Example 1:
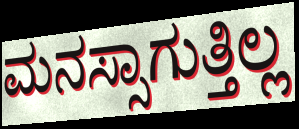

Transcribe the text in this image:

ಮನಸ್ಸಾಗುತ್ತಿಲ್ಲ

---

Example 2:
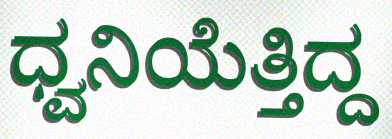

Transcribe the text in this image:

ಧ್ವನಿಯೆತ್ತಿದ್ದ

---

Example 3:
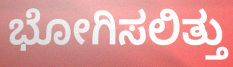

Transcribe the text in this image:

ಭೋಗಿಸಲಿತ್ತು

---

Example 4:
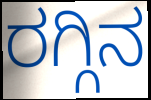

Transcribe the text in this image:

ರಗ್ಗಿನ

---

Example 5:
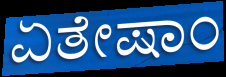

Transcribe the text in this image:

ಏತೇಷಾಂ